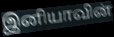
இனியாவின்